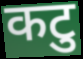
कटु